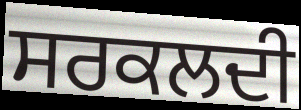
ਸਰਕਲਦੀ